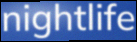
nightlife